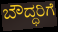
ಬೌದ್ಧರಿಗೆ